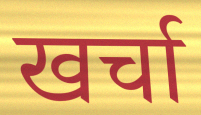
खर्चा